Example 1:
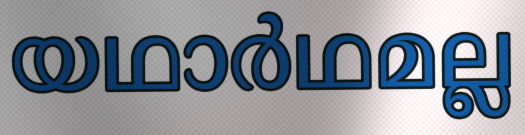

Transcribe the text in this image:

യഥാർഥമല്ല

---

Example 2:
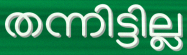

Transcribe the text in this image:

തന്നിട്ടില്ല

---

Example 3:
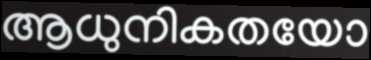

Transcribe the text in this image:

ആധുനികതയോ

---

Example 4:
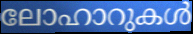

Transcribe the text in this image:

ലോഹാറുകൾ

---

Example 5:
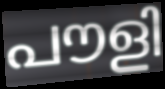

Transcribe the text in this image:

പൗളി